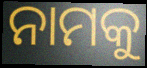
ନାମକୁ